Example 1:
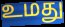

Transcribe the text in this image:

உமது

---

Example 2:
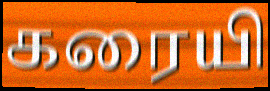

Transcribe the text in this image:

கரையி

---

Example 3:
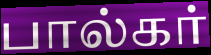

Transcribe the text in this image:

பால்கர்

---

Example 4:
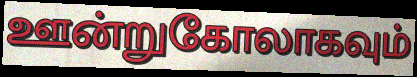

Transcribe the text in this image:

ஊன்றுகோலாகவும்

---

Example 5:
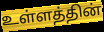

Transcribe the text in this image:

உள்ளத்தின்